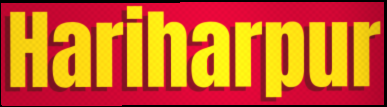
Hariharpur